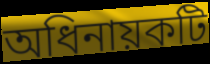
অধিনায়কটি